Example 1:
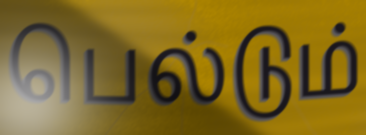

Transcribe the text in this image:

பெல்டும்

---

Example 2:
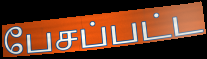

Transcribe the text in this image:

பேசப்பட்ட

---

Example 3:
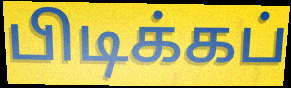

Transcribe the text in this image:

பிடிக்கப்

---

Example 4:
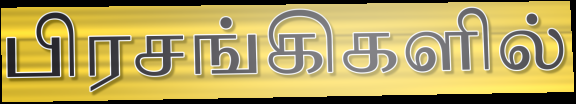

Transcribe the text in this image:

பிரசங்கிகளில்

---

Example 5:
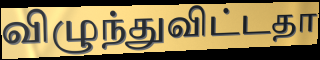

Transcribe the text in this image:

விழுந்துவிட்டதா